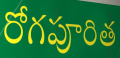
రోగపూరిత